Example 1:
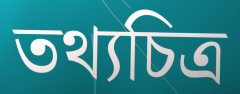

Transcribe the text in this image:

তথ্যচিত্র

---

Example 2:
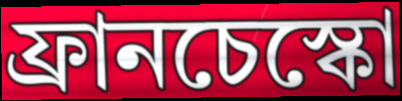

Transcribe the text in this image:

ফ্রানচেস্কো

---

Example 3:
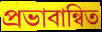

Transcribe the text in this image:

প্রভাবান্বিত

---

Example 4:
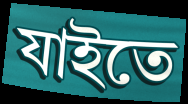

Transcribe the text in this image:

যাইতে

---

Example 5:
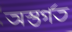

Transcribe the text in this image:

অস্তর্গত